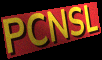
PCNSL